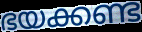
ഭയക്കണ്ട